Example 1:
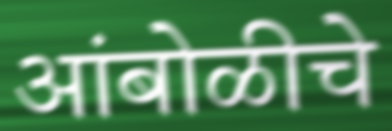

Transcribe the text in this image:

आंबोळीचे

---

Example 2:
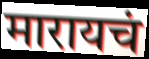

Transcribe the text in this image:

मारायचं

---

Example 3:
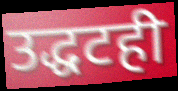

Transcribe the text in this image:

उद्धटही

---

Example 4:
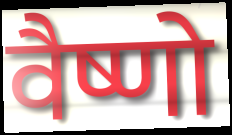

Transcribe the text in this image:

वैष्णो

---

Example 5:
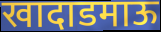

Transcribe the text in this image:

खादाडमाऊ